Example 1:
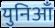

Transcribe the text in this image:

युनिआँ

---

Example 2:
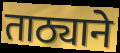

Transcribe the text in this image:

ताठ्याने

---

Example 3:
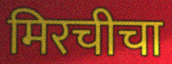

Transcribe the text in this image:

मिरचीचा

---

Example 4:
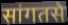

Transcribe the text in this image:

सांगतसे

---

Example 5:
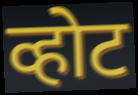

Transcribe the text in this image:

व्होट